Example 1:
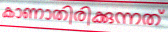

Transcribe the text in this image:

കാണാതിരിക്കുന്നത്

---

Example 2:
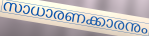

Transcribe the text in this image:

സാധാരണക്കാരനും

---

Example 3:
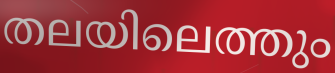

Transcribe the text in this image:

തലയിലെത്തും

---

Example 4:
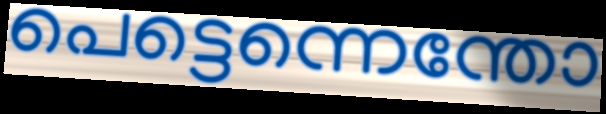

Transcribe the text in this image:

പെട്ടെന്നെന്തോ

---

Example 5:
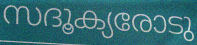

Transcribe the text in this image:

സദൂക്യരോടു